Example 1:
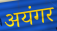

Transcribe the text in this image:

अयंगर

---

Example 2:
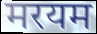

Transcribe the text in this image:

मरयम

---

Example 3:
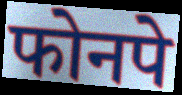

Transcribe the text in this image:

फोनपे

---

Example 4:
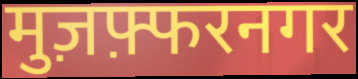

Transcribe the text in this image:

मुज़फ़्फरनगर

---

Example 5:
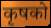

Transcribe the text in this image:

कृषको